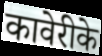
कावेरीके